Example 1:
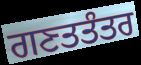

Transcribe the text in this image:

ਗਣਤਤੰਤਰ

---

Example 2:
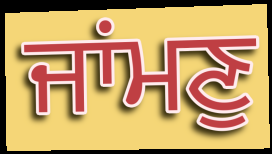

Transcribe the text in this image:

ਜਾਂਮਣੁ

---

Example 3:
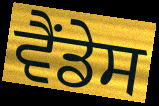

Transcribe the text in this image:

ਵੈਂਡੇਸ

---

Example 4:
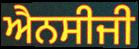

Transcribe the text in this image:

ਐਨਸੀਜੀ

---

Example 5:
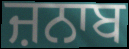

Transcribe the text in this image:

ਜ਼ਨਾਬ